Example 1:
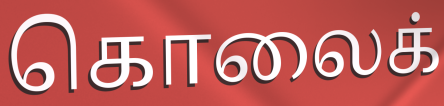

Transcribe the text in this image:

கொலைக்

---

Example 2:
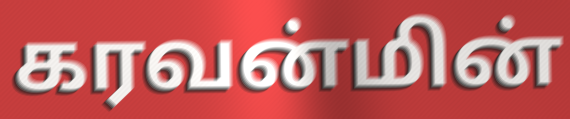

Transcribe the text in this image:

கரவன்மின்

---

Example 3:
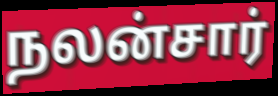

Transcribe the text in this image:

நலன்சார்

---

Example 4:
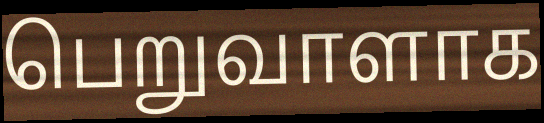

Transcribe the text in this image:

பெறுவாளாக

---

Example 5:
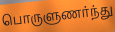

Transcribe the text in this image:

பொருளுணர்ந்து